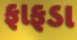
ફાફડા